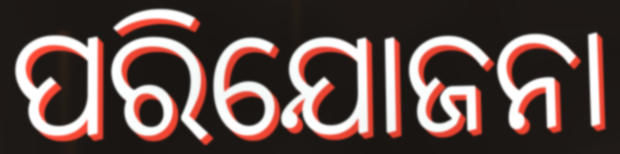
ପରିଯୋଜନା